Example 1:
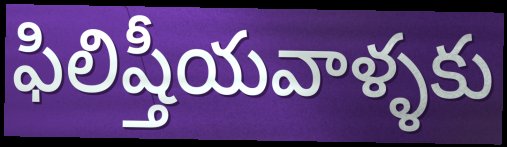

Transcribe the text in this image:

ఫిలిష్తీయవాళ్ళకు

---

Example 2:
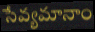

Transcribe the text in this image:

సేవ్యమానాం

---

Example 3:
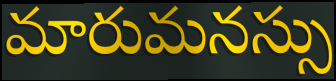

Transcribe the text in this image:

మారుమనస్సు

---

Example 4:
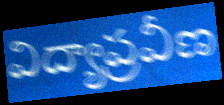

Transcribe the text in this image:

విద్యాప్రవీణ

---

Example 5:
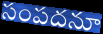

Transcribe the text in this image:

సంపదనూ